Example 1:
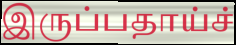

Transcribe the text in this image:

இருப்பதாய்ச்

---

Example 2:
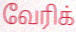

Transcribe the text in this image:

வேரிக்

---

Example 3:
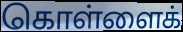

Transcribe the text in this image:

கொள்ளைக்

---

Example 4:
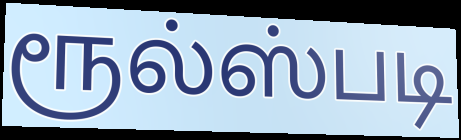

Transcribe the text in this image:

ரூல்ஸ்படி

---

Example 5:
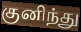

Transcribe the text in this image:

குனிந்து